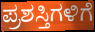
ಪ್ರಶಸ್ತಿಗಳಿಗೆ